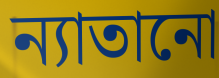
ন্যাতানো